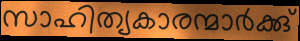
സാഹിത്യകാരന്മാർക്കു്